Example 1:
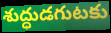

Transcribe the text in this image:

శుద్ధుడగుటకు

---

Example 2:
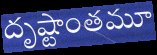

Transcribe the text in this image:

దృష్టాంతమూ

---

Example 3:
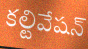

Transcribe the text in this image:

కల్టివేషన్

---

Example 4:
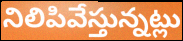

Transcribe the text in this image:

నిలిపివేస్తున్నట్లు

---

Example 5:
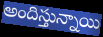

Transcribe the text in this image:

అందిస్తున్నాయి